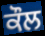
ਕੌਲ